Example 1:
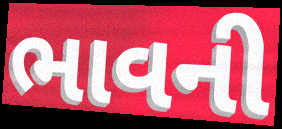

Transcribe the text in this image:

ભાવની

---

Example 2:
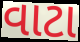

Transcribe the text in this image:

વાટા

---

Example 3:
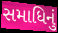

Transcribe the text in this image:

સમાધિનું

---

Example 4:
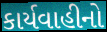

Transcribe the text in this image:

કાર્યવાહીનો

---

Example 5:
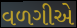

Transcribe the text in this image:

વળગીએ